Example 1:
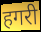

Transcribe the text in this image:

हगरी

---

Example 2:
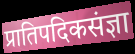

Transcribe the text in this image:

प्रातिपदिकसंज्ञा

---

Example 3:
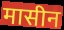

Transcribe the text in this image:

मासीन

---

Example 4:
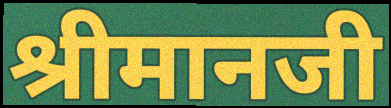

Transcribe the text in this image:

श्रीमानजी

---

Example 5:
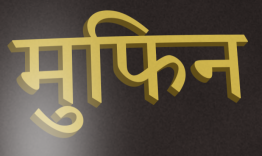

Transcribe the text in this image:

मुफिन